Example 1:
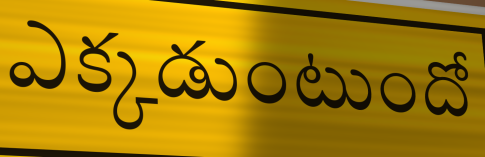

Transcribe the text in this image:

ఎక్కడుంటుందో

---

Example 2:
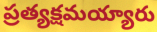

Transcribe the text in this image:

ప్రత్యక్షమయ్యారు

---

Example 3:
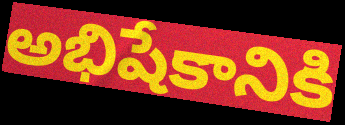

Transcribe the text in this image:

అభిషేకానికి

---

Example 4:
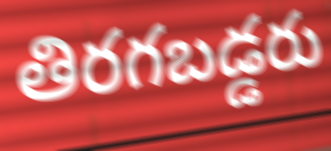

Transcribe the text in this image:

తిరగబడ్డరు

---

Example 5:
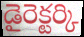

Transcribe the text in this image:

డైరెక్టర్కి